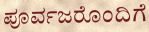
ಪೂರ್ವಜರೊಂದಿಗೆ